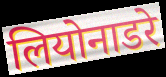
लियोनाडरे